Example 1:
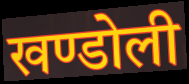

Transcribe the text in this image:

खण्डोली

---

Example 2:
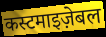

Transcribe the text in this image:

कस्टमाइज़ेबल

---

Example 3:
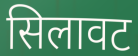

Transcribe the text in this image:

सिलावट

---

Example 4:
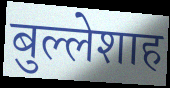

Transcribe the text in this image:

बुल्लेशाह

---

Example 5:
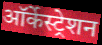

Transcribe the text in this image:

ऑर्केस्ट्रेशन